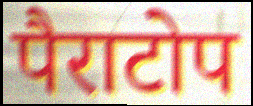
पैराटोप